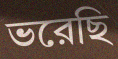
ভরেছি